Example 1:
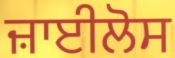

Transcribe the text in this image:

ਜ਼ਾਈਲੋਸ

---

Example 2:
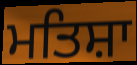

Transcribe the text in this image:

ਮਤਿਸ਼ਾ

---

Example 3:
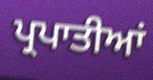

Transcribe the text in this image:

ਪ੍ਰਪਾਤੀਆਂ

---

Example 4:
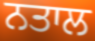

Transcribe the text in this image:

ਨਤਾਲ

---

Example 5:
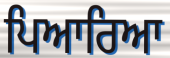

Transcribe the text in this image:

ਪਿਆਰਿਆ